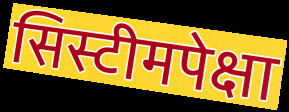
सिस्टीमपेक्षा